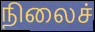
நிலைச்